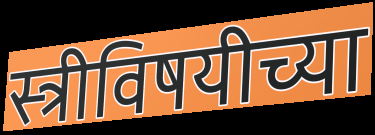
स्त्रीविषयीच्या